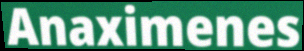
Anaximenes